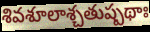
శివశూలాశ్చతుష్పథాః